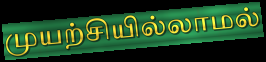
முயற்சியில்லாமல்